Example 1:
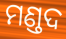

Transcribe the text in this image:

ମଣ୍ଡଦ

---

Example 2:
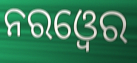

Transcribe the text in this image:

ନରଓ୍ବେର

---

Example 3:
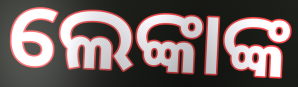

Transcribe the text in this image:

ଲେଙ୍କାଙ୍କ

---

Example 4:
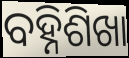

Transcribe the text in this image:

ବହ୍ନିଶିଖା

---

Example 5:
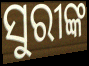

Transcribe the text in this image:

ସୁରୀଙ୍କ